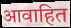
आवाहित